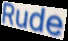
Rude